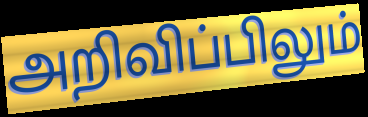
அறிவிப்பிலும்